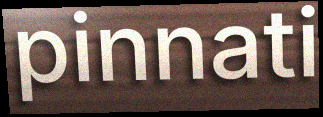
pinnati